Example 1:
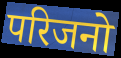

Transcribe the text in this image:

परिजनो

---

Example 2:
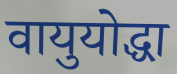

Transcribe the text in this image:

वायुयोद्धा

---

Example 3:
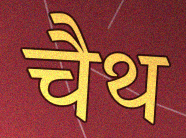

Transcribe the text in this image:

चैथ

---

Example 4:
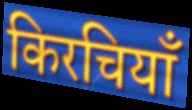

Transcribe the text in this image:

किरचियाँ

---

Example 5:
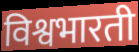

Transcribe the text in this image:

विश्वभारती